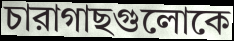
চারাগাছগুলোকে